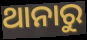
ଥାନାରୁ